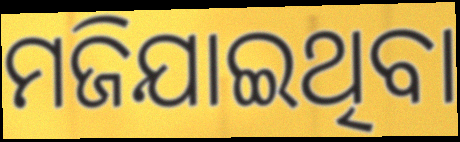
ମଜିଯାଇଥିବା